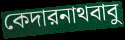
কেদারনাথবাবু